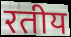
रतीय